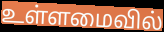
உள்ளமைவில்